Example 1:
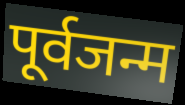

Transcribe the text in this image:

पूर्वजन्म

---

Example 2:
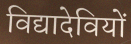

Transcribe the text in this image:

विद्यादेवियों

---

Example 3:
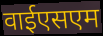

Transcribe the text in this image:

वाईएसएम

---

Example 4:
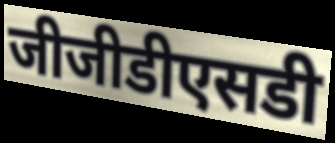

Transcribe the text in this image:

जीजीडीएसडी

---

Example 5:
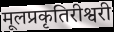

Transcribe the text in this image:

मूलप्रकृतिरीश्वरी